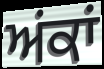
ਅਂਕਾਂ